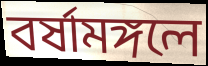
বর্ষামঙ্গলে